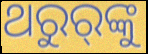
ଥରୁର୍‌ଙ୍କୁ